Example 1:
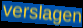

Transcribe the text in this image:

verslagen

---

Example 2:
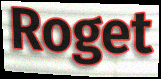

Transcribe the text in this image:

Roget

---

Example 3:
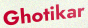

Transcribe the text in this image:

Ghotikar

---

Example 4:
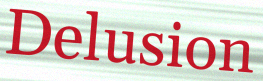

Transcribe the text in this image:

Delusion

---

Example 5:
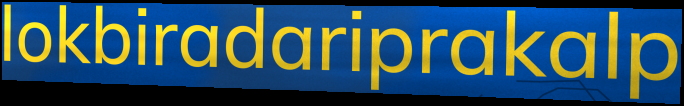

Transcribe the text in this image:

lokbiradariprakalp